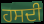
ਹਸਦੀ